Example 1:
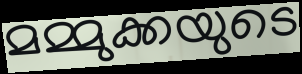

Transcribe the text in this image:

മമ്മുക്കയുടെ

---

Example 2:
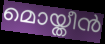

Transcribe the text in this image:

മൊയ്തീൻ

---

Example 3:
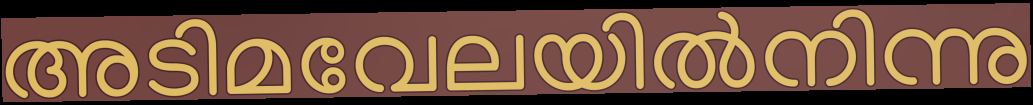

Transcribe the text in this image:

അടിമവേലയിൽനിന്നു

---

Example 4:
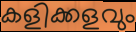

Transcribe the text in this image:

കളിക്കളവും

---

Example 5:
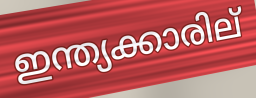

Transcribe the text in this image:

ഇന്ത്യക്കാരില്